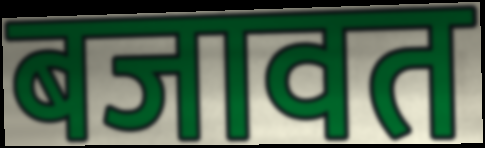
बजावत